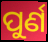
ପୁର୍ଣ